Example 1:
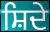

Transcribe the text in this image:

ਸ਼ਿਦੇ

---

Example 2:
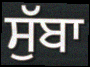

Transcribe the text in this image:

ਸੁੱਬਾ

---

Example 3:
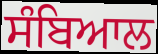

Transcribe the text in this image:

ਸੰਬਿਆਲ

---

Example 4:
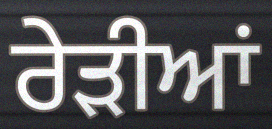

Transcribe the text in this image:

ਰੇੜੀਆਂ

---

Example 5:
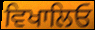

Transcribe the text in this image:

ਵਿਖਾਲਿਓ